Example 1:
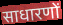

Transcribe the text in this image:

साधारणों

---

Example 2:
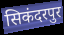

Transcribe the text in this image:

सिकंदरपुर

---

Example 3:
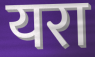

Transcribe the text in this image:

यरा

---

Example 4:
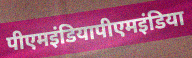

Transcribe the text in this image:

पीएमइंडियापीएमइंडिया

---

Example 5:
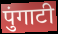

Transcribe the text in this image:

पुंगाटी